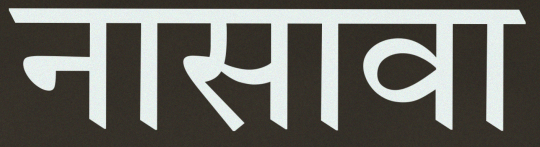
नासावा